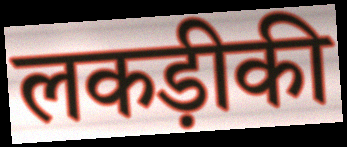
लकड़ीकी